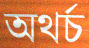
অথৰ্চ